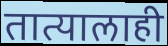
तात्यालाही